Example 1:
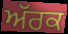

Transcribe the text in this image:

ਅੱਰਕ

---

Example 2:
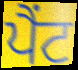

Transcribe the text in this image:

ਪੈਂਟ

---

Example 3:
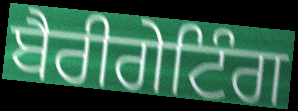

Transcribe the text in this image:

ਬੈਰੀਗੇਟਿੰਗ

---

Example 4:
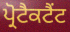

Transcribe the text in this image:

ਪ੍ਰੋਟੈਕਟੈਂਟ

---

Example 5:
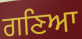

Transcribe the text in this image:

ਗਣਿਆ